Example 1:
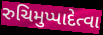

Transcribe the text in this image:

રુચિમુપ્પાદેત્વા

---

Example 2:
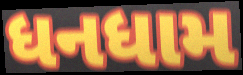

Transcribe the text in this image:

ધનધામ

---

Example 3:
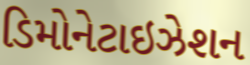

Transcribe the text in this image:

ડિમોનેટાઇઝેશન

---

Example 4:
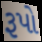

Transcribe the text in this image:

રૂપો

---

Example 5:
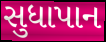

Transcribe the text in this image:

સુધાપાન